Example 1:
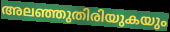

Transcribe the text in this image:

അലഞ്ഞുതിരിയുകയും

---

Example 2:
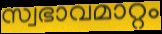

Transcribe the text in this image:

സ്വഭാവമാറ്റം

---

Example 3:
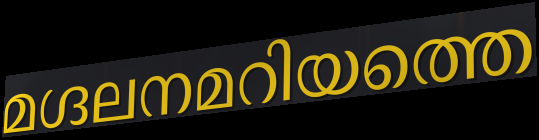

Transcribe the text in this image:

മഗ്ദലനമറിയത്തെ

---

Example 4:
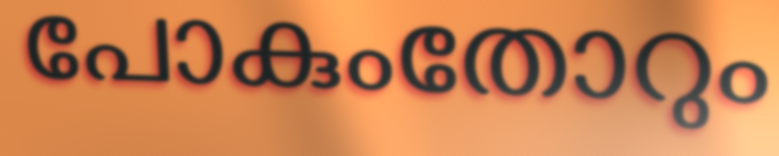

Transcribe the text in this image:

പോകുംതോറും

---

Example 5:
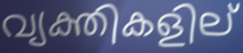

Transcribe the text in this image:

വ്യക്തികളില്